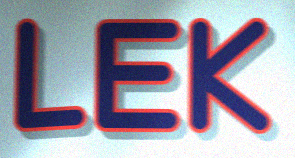
LEK